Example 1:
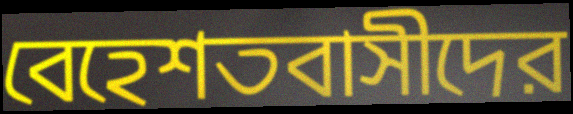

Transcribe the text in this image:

বেহেশতবাসীদের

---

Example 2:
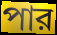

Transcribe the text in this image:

পার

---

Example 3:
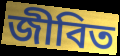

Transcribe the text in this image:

জীবিত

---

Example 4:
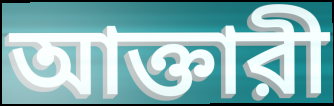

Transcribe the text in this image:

আক্তারী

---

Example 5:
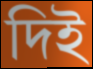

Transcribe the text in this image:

দিই